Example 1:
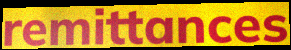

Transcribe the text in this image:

remittances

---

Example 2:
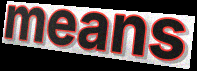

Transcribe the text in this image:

means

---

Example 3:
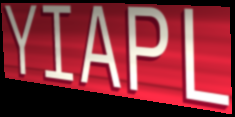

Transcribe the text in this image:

YIAPL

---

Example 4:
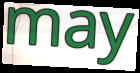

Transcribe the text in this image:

may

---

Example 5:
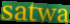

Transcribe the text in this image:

satwa